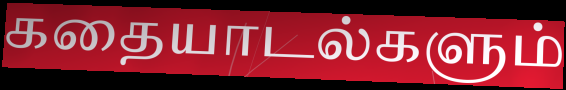
கதையாடல்களும்